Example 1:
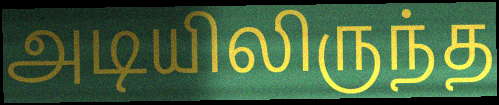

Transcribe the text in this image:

அடியிலிருந்த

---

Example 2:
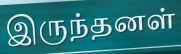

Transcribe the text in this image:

இருந்தனள்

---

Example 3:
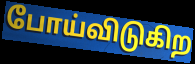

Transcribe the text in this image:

போய்விடுகிற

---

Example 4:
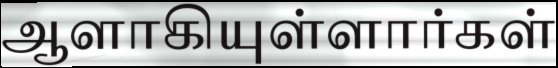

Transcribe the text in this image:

ஆளாகியுள்ளார்கள்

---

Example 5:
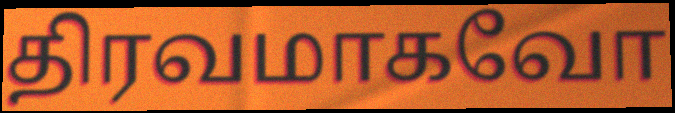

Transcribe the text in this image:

திரவமாகவோ